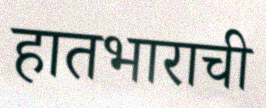
हातभाराची